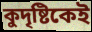
কুদৃষ্টিকেই